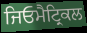
ਜਿਓਮੈਟ੍ਰਿਕਲ